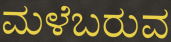
ಮಳೆಬರುವ